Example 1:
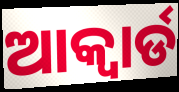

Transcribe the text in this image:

ଆକ୍ୱାର୍ଡ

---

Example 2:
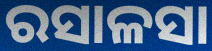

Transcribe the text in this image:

ରସାଳସା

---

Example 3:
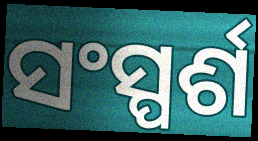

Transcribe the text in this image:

ସଂସ୍ପର୍ଶ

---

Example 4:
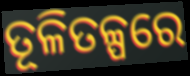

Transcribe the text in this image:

ତୂଳିତଳ୍ପରେ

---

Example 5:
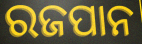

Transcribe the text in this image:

ରଜପାନ